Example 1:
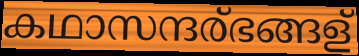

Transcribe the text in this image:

കഥാസന്ദര്ഭങ്ങള്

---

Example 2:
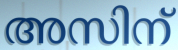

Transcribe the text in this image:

അസിന്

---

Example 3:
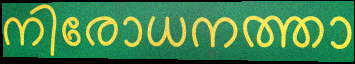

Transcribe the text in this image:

നിരോധനത്താ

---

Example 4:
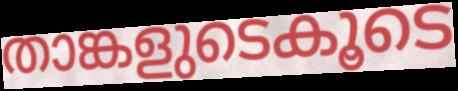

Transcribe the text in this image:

താങ്കളുടെകൂടെ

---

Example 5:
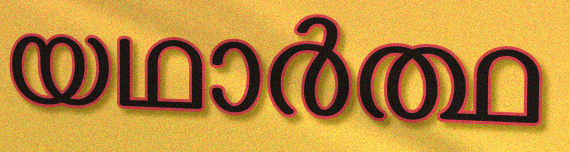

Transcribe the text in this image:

യഥാർത്ഥ